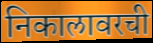
निकालावरची